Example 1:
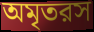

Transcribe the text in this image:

অমৃতরস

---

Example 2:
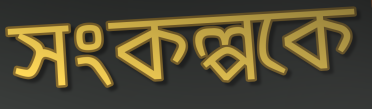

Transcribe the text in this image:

সংকল্পকে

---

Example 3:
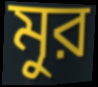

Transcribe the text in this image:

মুর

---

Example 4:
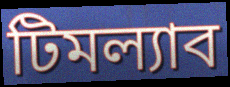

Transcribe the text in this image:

টিমল্যাব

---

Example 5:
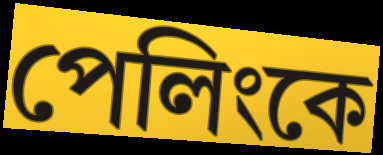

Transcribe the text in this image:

পেলিংকে